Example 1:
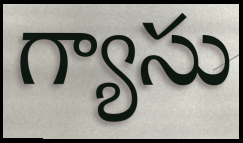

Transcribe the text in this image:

గ్యాసు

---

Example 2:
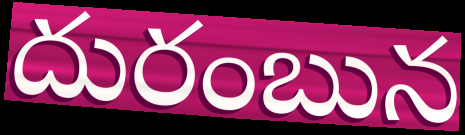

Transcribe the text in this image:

దురంబున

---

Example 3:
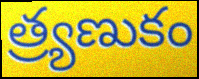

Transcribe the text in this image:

త్ర్యణుకం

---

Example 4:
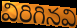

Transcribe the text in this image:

విరిగినవి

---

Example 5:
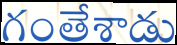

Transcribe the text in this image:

గంతేశాడు